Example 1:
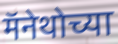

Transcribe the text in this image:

मॅनेथोच्या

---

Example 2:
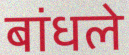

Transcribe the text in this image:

बांधले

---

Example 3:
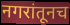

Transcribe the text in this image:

नगरांतूनच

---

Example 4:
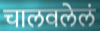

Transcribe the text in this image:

चालवलेलं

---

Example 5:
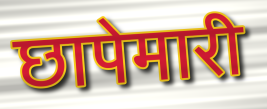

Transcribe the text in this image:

छापेमारी